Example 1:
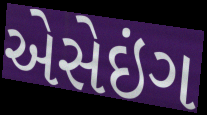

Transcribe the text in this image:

એસેઇંગ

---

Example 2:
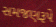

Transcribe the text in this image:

સમજણરૂપે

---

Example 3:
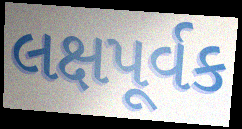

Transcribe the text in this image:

લક્ષપૂર્વક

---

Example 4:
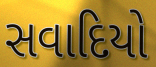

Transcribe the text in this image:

સવાદિયો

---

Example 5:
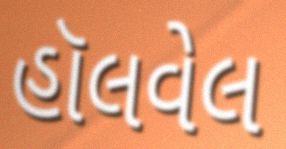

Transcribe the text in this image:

હૉલવેલ